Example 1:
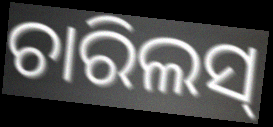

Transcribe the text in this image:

ଚାରିଲସ୍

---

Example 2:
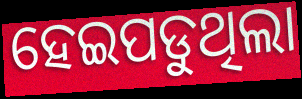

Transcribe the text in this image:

ହେଇପଡୁଥିଲା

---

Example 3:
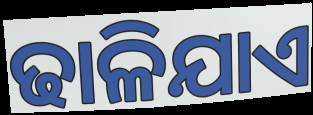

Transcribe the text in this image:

ଢାଳିଯାଏ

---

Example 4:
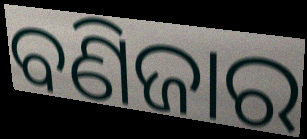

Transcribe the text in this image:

ବଣିଜାର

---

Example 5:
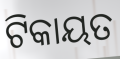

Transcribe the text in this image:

ଟିକାୟତ